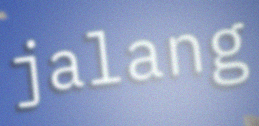
jalang